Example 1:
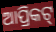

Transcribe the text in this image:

ଆପ୍ରିକଟ୍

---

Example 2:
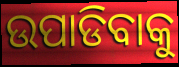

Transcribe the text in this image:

ଉପାଡିବାକୁ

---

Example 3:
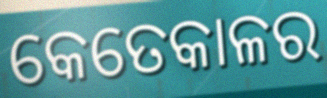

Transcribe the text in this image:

କେତେକାଳର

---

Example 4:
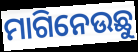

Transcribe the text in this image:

ମାଗିନେଉଛୁ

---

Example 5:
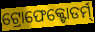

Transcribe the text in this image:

ଟ୍ରୋଫେକ୍ଟୋଡର୍ମ୍